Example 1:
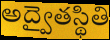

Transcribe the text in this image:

అద్వైతస్థితి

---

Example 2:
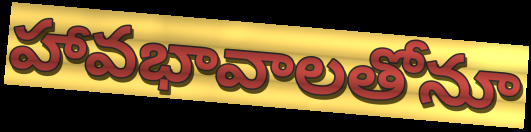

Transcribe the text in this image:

హావభావాలతోనూ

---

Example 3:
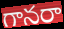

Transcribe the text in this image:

గానరా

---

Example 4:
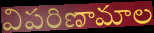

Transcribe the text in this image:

విపరిణామాల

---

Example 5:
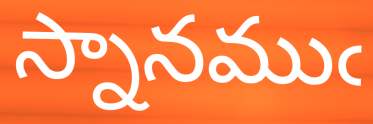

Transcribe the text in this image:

స్నానముఁ